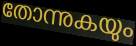
തോന്നുകയും